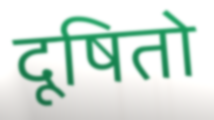
दूषितो